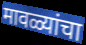
मावळ्यांचा